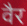
वैर